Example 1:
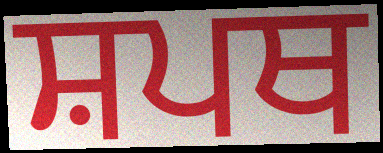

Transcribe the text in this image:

ਸ਼ਪਥ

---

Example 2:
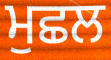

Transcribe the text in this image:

ਮੁਛਲ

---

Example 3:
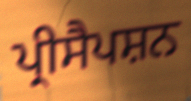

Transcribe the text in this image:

ਪ੍ਰੀਸੈਪਸ਼ਨ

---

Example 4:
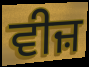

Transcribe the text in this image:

ਵੀਜ਼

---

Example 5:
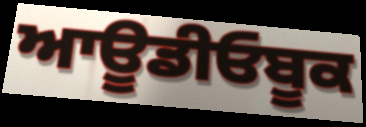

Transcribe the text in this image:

ਆਊਡੀਓਬੂਕ